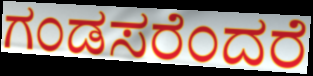
ಗಂಡಸರೆಂದರೆ